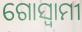
ଗୋସ୍ୱାମୀ